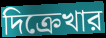
দিক্রেখার